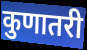
कुणातरी